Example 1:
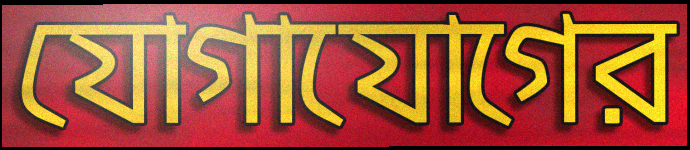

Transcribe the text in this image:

যোগাযোগের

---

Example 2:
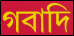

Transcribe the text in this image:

গবাদি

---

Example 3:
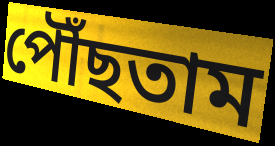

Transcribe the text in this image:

পৌঁছতাম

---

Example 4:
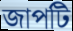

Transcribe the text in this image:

জাপটি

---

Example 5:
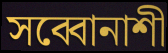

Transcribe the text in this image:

সব্বোনাশী